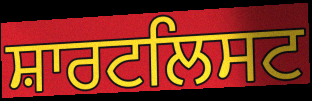
ਸ਼ਾਰਟਲਿਸਟ